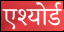
एश्योर्ड